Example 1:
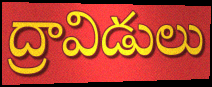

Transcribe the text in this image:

ద్రావిడులు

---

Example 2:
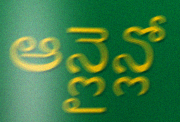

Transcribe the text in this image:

ఆన్లైన్లో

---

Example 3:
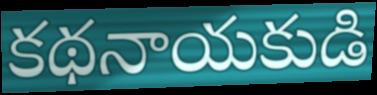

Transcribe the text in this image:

కథనాయకుడి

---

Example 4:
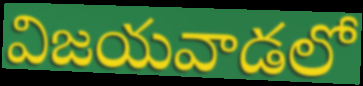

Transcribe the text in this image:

విజయవాడలో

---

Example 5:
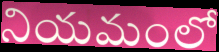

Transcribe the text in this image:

నియమంలో